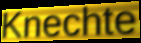
Knechte